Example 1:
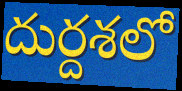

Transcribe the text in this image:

దుర్దశలో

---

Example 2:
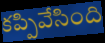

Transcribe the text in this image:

కప్పివేసింది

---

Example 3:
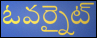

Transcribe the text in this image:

ఓవర్నైట్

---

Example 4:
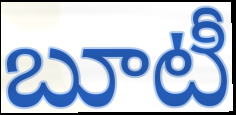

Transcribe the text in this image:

బూటీ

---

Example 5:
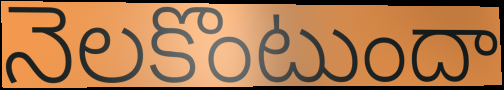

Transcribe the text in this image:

నెలకొంటుందా